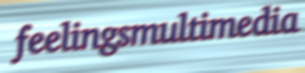
feelingsmultimedia